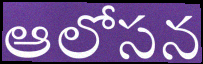
ఆలోసన